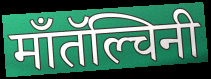
माँतॅल्चिनी